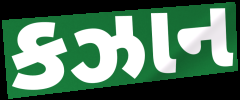
કઝાન